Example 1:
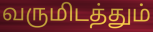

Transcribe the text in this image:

வருமிடத்தும்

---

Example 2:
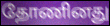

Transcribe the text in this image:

தோணினது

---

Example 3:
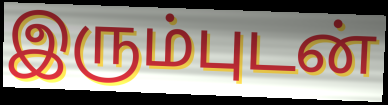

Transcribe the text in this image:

இரும்புடன்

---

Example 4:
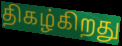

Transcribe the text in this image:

திகழ்கிறது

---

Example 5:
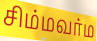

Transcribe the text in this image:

சிம்மவர்ம